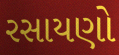
રસાયણો